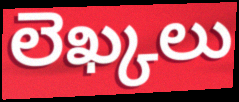
లెఖ్కలు